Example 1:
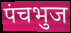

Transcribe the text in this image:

पंचभुज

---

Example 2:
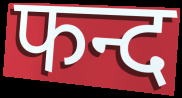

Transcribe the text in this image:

फन्द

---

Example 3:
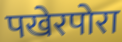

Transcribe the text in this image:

पखेरपोरा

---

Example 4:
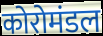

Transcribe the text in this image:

कोरोमंडल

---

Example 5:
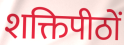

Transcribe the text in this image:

शक्तिपीठों